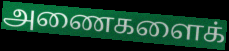
அணைகளைக்